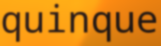
quinque